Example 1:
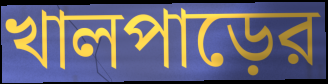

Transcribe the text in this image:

খালপাড়ের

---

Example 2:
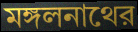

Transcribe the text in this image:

মঙ্গলনাথের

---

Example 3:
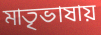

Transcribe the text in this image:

মাতৃভাষায়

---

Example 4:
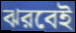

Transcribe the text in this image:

ঝরবেই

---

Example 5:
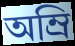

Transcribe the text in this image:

অম্রি